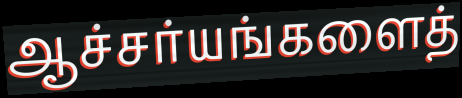
ஆச்சர்யங்களைத்